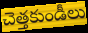
చెత్తకుండీలు